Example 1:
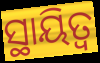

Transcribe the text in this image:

ସ୍ଥାୟିତ୍ୱ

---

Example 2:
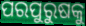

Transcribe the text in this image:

ପରପୁରୁଷକୁ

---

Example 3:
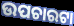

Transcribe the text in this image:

ଉପଚାରଟା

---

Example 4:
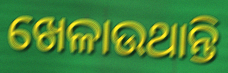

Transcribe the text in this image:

ଖେଳାଉଥାନ୍ତି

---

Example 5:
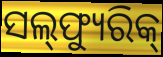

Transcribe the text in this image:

ସଲ୍‌ଫ୍ୟୁରିକ୍